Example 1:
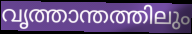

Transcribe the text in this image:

വൃത്താന്തത്തിലും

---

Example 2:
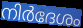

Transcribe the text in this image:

നിർദേശം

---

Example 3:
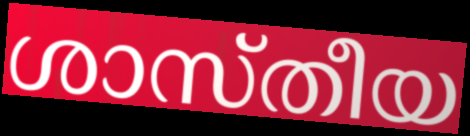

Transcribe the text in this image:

ശാസ്തീയ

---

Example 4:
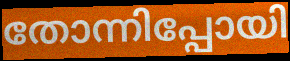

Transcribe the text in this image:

തോന്നിപ്പോയി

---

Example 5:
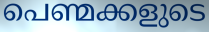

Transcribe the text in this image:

പെണ്മക്കളുടെ